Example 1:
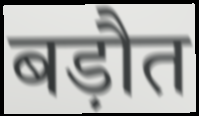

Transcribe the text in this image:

बड़ौत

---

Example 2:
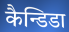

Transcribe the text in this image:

कैन्डिडा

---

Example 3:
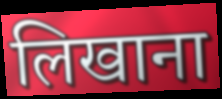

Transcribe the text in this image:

लिखाना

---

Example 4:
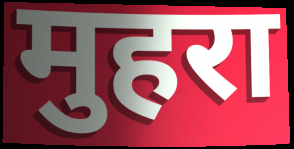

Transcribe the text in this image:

मुहरा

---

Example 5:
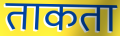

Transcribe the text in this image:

ताकता